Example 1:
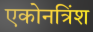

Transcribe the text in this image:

एकोनत्रिंश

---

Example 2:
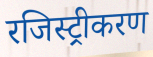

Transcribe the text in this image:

रजिस्ट्रीकरण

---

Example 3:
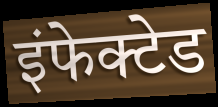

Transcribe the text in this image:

इंफेक्टेड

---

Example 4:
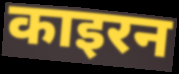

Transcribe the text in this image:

काइरन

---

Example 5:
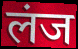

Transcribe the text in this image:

लंज